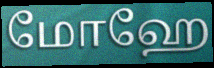
மோஹே